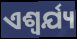
ଏଶ୍ଵର୍ଯ୍ୟ